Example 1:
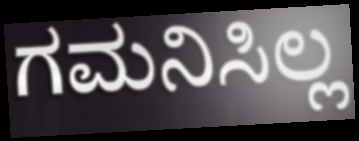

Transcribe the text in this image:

ಗಮನಿಸಿಲ್ಲ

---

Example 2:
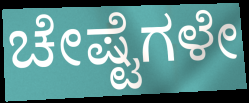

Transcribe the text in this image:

ಚೇಷ್ಟೆಗಳೇ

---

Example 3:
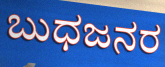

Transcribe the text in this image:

ಬುಧಜನರ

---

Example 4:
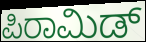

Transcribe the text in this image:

ಪಿರಾಮಿಡ್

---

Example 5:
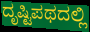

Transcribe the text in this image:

ದೃಷ್ಟಿಪಥದಲ್ಲಿ